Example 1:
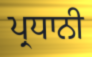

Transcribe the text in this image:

ਪ੍ਰਧਾਨੀ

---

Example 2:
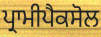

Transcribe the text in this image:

ਪ੍ਰਾਮੀਪੈਕਸੋਲ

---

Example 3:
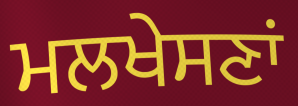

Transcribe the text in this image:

ਮਲਖੇਸਣਾਂ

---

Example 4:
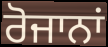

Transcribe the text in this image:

ਰੋਜਾਨਾਂ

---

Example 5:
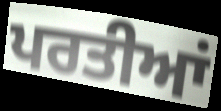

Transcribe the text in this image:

ਪਰਤੀਆਂ